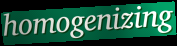
homogenizing